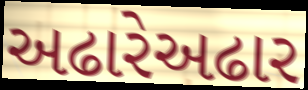
અઢારેઅઢાર